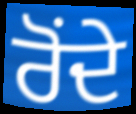
ਰੋਂਦੇ